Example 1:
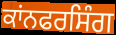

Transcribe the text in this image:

ਕਾਂਨਫਰਸਿੰਗ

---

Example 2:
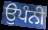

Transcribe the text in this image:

ਉਪੰਨੀ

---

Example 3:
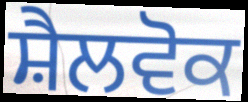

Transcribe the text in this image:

ਸ਼ੈਲਵੋਕ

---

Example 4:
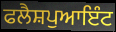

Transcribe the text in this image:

ਫਲੈਸ਼ਪੁਆਇੰਟ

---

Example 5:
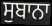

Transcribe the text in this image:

ਸੁਬਾਨਾ